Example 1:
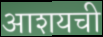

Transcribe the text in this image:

आशयची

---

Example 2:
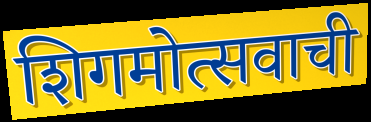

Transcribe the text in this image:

शिगमोत्सवाची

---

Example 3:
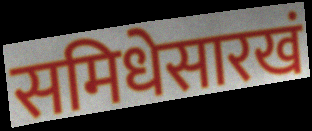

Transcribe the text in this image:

समिधेसारखं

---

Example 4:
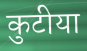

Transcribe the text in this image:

कुटीया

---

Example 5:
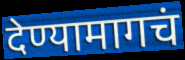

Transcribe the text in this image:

देण्यामागचं